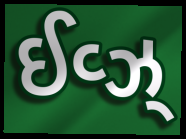
ઈવ્ઝ્